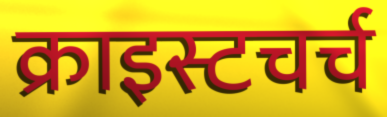
क्राइस्टचर्च